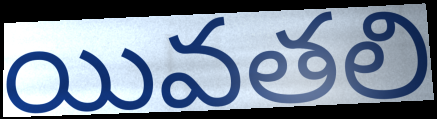
యివతలి